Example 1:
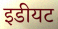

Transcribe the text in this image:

इडीयट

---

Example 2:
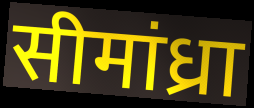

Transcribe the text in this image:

सीमांध्रा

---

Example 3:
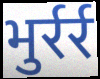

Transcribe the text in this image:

भुर्रर्र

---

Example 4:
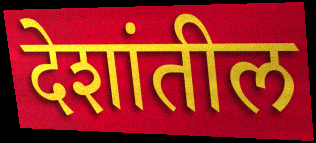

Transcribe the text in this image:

देशांतील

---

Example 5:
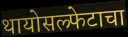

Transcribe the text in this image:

थायोसल्फेटाचा